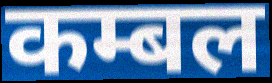
कम्बल